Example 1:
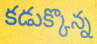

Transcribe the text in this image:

కడుక్కొన్న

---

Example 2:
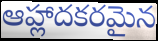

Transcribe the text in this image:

ఆహ్లాదకరమైన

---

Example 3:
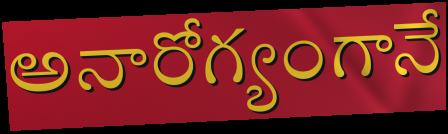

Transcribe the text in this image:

అనారోగ్యంగానే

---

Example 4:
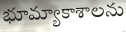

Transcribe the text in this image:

భూమ్యాకాశాలను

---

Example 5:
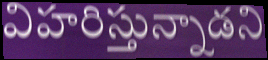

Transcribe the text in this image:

విహరిస్తున్నాడని